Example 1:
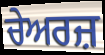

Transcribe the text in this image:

ਚੇਅਰਜ਼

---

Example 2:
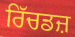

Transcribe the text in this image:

ਰਿੱਚਡਜ਼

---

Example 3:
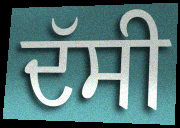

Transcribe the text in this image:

ਦੱਸੀ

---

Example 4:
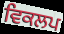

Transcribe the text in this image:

ਵਿਕਲਪ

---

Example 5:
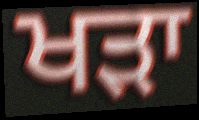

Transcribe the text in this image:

ਖੜਾ